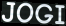
JOGI